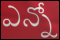
ఎన్నో